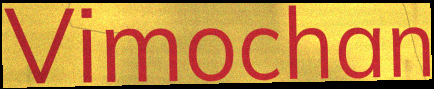
Vimochan